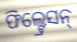
ଫିଲ୍ଟ୍ରେସନ୍